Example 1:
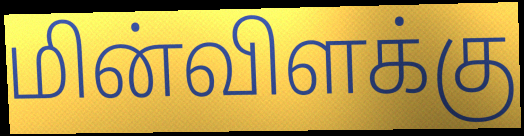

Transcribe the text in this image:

மின்விளக்கு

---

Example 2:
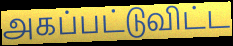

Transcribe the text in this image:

அகப்பட்டுவிட்ட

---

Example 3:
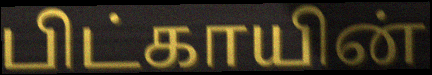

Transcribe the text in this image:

பிட்காயின்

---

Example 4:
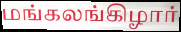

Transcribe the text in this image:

மங்கலங்கிழார்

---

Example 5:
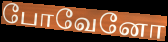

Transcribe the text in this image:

போவேனோ